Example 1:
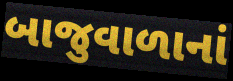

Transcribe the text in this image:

બાજુવાળાનાં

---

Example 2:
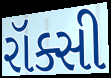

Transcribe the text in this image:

રૉક્સી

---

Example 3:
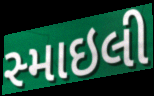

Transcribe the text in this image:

સ્માઇલી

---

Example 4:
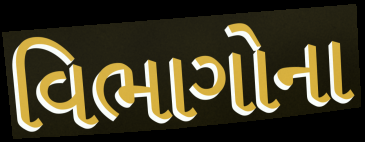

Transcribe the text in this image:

વિભાગોના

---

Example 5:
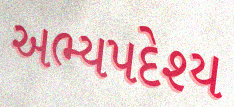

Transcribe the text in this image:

અભ્યપદેશ્ય